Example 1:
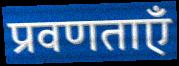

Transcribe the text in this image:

प्रवणताएँ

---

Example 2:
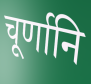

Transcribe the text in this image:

चूर्णानि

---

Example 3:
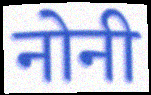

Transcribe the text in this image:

नोनी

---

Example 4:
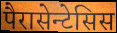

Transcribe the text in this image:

पैरासेन्टेसिस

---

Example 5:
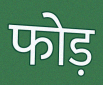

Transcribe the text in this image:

फोड़